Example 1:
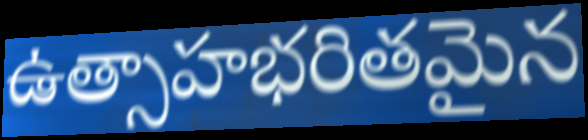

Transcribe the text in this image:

ఉత్సాహభరితమైన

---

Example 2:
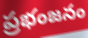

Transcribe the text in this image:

ప్రభంజనం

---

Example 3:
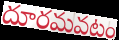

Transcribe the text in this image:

దూరమవటం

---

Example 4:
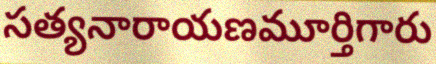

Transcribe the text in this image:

సత్యనారాయణమూర్తిగారు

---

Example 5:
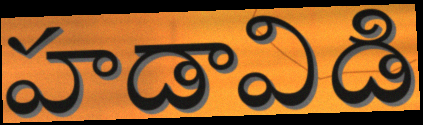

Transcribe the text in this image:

హడావిడి